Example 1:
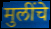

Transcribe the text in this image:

मुलींचे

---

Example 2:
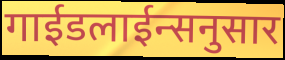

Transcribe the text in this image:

गाईडलाईन्सनुसार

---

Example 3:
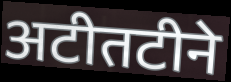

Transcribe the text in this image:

अटीतटीने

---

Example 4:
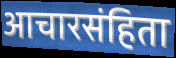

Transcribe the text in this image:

आचारसंहिता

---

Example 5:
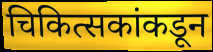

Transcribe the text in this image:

चिकित्सकांकडून